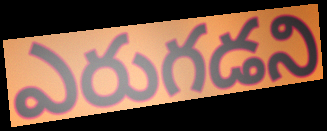
ఎరుగడని